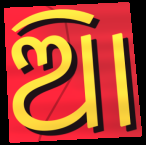
ଆି